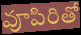
వూపిరితో